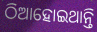
ଠିଆହୋଇଥାନ୍ତି